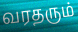
வரதரும்